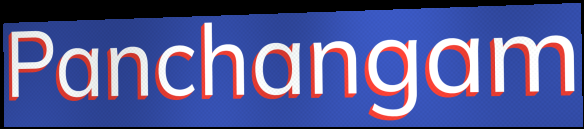
Panchangam